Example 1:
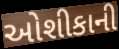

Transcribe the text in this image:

ઓશીકાની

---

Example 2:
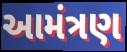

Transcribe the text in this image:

આમંત્રણ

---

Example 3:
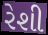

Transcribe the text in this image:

રેશી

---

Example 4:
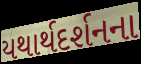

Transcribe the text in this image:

યથાર્થદર્શનના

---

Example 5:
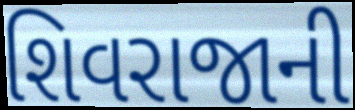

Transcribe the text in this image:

શિવરાજાની